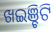
ଖଇଞ୍ଚିଟି